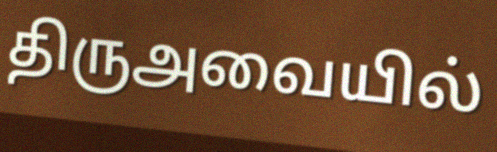
திருஅவையில்